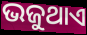
ଭଜୁଥାଏ